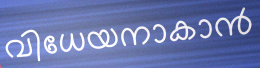
വിധേയനാകാൻ